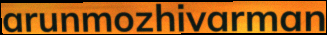
arunmozhivarman